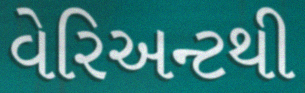
વેરિઅન્ટથી